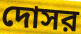
দোসর